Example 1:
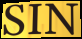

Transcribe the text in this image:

SIN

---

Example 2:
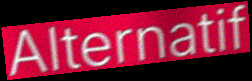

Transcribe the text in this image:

Alternatif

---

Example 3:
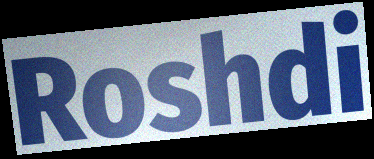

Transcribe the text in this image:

Roshdi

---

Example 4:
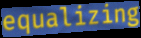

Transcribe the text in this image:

equalizing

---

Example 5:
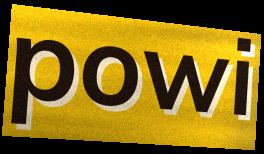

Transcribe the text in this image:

powi